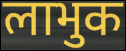
लाभुक